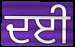
ਦਈ